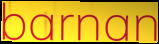
barnan